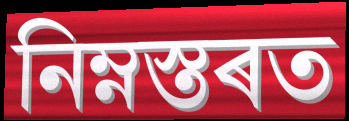
নিম্নস্তৰত